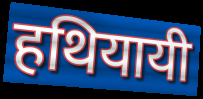
हथियायी